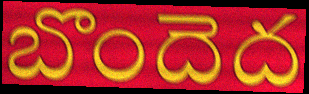
బొందెద